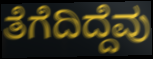
ತೆಗೆದಿದ್ದೆವು